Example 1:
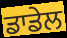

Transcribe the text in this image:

ਡਾਡੇਲ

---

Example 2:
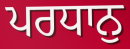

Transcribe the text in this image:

ਪਰਧਾਨੁ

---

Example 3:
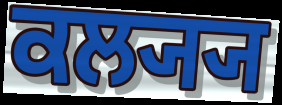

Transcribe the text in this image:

ਕਲ੍ਯ੍ਯ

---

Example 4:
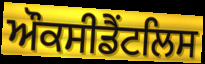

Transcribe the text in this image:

ਔਕਸੀਡੈਂਟਲਿਸ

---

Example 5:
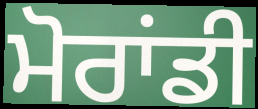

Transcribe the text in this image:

ਮੋਰਾਂਡੀ